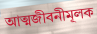
আত্মজীবনীমূলক